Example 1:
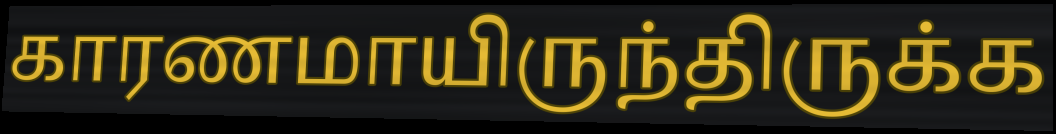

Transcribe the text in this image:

காரணமாயிருந்திருக்க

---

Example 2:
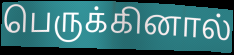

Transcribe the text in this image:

பெருக்கினால்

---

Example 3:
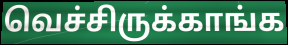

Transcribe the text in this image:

வெச்சிருக்காங்க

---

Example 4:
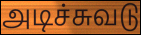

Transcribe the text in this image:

அடிச்சுவடு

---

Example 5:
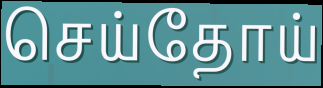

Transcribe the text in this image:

செய்தோய்